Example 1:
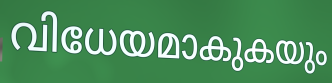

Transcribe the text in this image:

വിധേയമാകുകയും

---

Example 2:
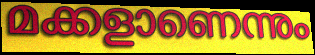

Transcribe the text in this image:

മക്കളാണെന്നും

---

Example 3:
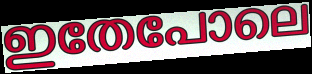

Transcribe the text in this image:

ഇതേപോലെ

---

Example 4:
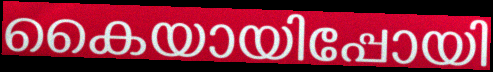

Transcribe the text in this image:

കൈയായിപ്പോയി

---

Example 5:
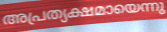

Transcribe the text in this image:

അപ്രത്യക്ഷമായെന്നു